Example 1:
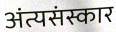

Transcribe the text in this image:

अंत्यसंस्कार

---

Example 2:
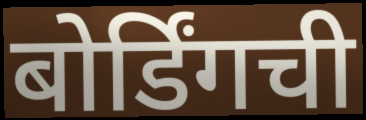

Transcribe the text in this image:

बोर्डिंगची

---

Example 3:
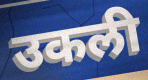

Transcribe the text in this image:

उकली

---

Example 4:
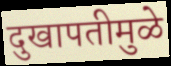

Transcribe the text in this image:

दुखापतीमुळे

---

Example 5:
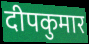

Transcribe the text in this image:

दीपकुमार